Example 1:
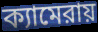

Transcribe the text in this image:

ক্যামেরায়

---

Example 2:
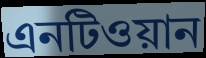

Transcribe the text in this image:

এনটিওয়ান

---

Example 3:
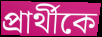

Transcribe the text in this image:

প্রার্থীকে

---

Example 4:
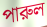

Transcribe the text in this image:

পারুল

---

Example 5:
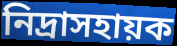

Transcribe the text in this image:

নিদ্রাসহায়ক